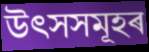
উৎসসমূহৰ